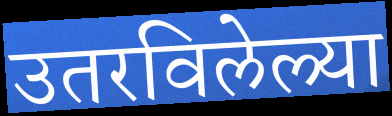
उतरविलेल्या